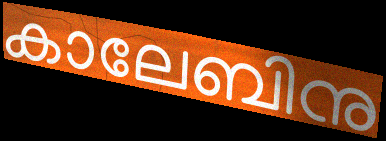
കാലേബിനു